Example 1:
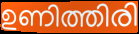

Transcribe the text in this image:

ഉണിത്തിരി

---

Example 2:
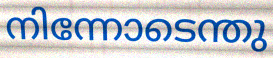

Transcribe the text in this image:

നിന്നോടെന്തു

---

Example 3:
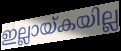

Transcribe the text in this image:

ഇല്ലായ്കയില്ല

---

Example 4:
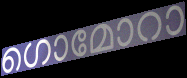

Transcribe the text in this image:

ഗൊമോറാ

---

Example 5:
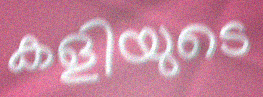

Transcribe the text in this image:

കളിയുടെ